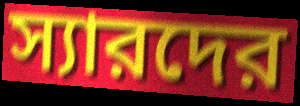
স্যারদের